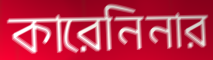
কারেনিনার